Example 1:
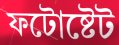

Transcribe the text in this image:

ফটোষ্টেট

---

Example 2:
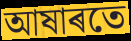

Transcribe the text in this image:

আষাৰতে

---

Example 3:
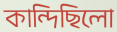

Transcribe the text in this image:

কান্দিছিলো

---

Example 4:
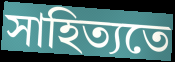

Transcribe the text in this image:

সাহিত্য়তে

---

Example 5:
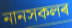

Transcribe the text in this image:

নানসকলৰ